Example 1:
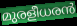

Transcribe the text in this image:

മുരളീധരൻ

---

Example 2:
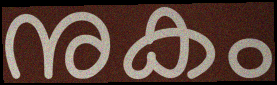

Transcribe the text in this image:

നുകം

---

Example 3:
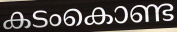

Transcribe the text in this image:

കടംകൊണ്ട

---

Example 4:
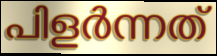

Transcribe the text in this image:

പിളർന്നത്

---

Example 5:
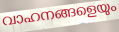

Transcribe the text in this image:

വാഹനങ്ങളെയും